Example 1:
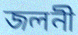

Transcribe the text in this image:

জলনী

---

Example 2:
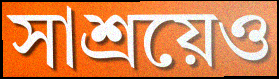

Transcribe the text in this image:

সাশ্রয়েও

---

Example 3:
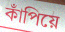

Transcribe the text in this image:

কাঁপিয়ে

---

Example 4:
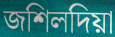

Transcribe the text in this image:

জশিলদিয়া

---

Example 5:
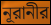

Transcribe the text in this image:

নূরানীর